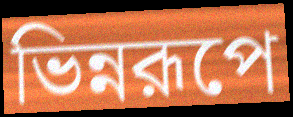
ভিন্নরূপে